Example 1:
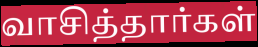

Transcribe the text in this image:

வாசித்தார்கள்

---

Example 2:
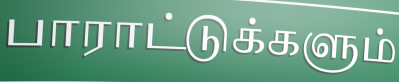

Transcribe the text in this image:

பாராட்டுக்களும்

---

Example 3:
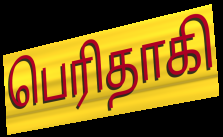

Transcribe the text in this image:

பெரிதாகி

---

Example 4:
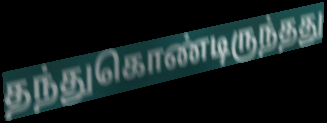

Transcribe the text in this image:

தந்துகொண்டிருந்தது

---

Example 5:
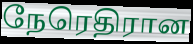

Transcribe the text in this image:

நேரெதிரான